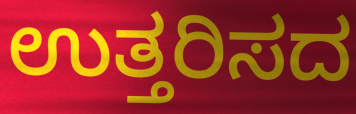
ಉತ್ತರಿಸದ